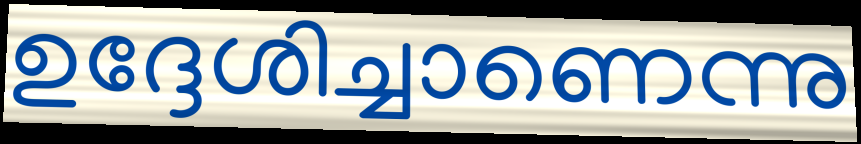
ഉദ്ദേശിച്ചാണെന്നു